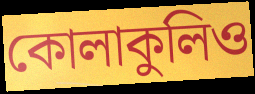
কোলাকুলিও